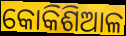
କୋକିଶିଆଳ